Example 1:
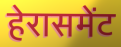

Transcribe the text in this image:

हेरासमेंट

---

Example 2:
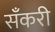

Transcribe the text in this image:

सँकरी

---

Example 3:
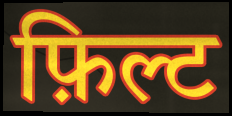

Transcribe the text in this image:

फ़िल्ट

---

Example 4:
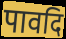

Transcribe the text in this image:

पावदि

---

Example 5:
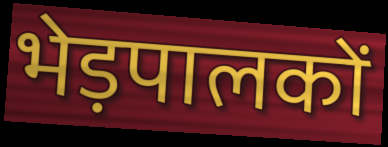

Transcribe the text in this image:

भेड़पालकों